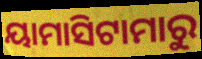
ୟାମାସିଟାମାରୁ